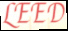
LEED